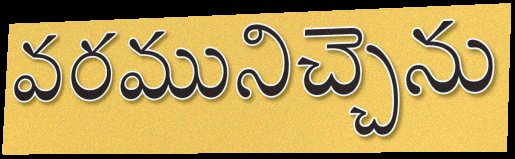
వరమునిచ్చెను